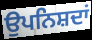
ਉਪਨਿਸ਼ਦਾਂ